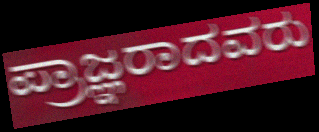
ಪ್ರಾಜ್ಞರಾದವರು